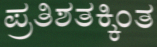
ಪ್ರತಿಶತಕ್ಕಿಂತ